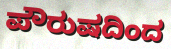
ಪೌರುಷದಿಂದ